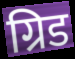
ग्रिड